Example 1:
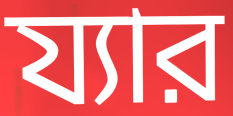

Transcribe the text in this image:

য্যার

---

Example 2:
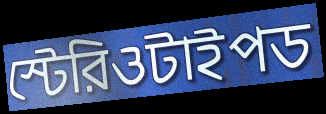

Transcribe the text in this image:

স্টেরিওটাইপড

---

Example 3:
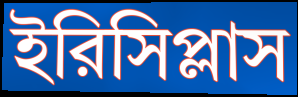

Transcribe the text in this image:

ইরিসিপ্লাস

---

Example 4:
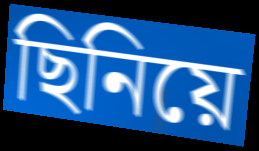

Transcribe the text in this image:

ছিনিয়ে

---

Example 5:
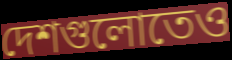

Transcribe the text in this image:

দেশগুলোতেও